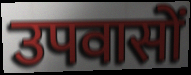
उपवासों